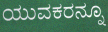
ಯುವಕರನ್ನೂ